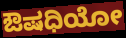
ಔಷಧಿಯೋ